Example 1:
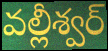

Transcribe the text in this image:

వల్లీశ్వర్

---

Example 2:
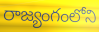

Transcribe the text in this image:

రాజ్యంగంలోని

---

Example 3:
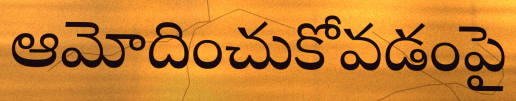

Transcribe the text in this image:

ఆమోదించుకోవడంపై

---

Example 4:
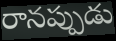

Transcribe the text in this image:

రానప్పుడు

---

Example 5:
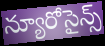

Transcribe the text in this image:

న్యూరోసైన్స్